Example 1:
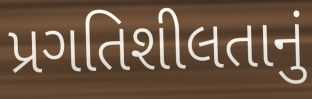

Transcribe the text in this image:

પ્રગતિશીલતાનું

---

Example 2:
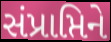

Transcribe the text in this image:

સંપ્રાપ્તિને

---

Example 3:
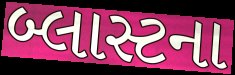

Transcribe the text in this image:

બ્લાસ્ટના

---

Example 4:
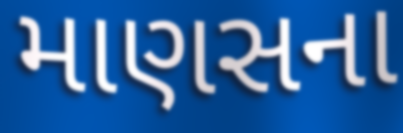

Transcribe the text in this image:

માણસના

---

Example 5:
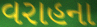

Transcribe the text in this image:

વરાહના